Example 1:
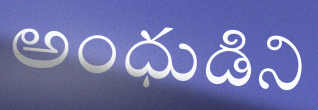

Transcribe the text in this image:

అంధుడిని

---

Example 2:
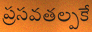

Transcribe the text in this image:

ప్రసవతల్పకే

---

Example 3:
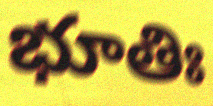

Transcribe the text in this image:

భూతిః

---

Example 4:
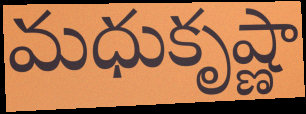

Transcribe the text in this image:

మధుకృష్ణా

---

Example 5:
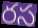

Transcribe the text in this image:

రస